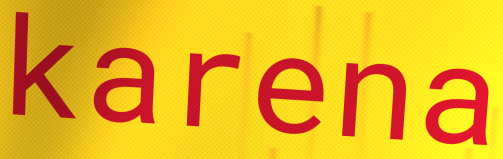
karena